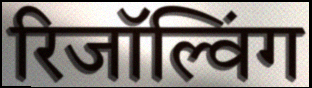
रिजॉल्विंग